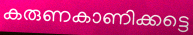
കരുണകാണിക്കട്ടെ